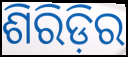
ଶିରିଡ଼ିର